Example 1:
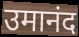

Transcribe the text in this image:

उमानंद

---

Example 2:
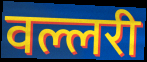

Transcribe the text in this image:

वल्लरी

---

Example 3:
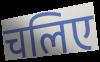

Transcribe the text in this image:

चलिए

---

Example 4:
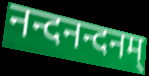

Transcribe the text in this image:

नन्दनन्दनम्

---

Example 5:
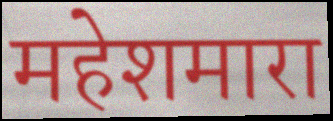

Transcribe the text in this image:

महेशमारा